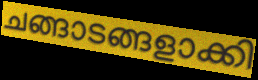
ചങ്ങാടങ്ങളാക്കി